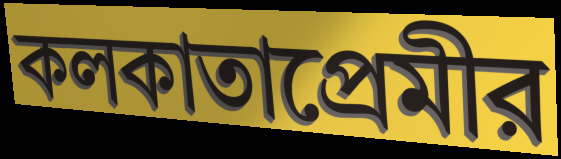
কলকাতাপ্রেমীর